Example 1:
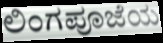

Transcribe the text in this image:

ಲಿಂಗಪೂಜೆಯ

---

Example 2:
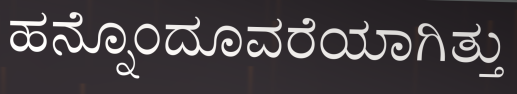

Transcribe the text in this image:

ಹನ್ನೊಂದೂವರೆಯಾಗಿತ್ತು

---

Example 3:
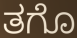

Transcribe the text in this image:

ತಗೊ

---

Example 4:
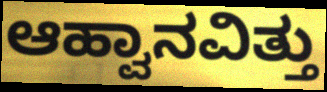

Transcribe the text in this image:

ಆಹ್ವಾನವಿತ್ತು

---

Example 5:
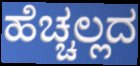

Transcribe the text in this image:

ಹೆಚ್ಚಲ್ಲದ